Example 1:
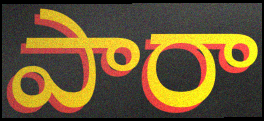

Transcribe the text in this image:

పారా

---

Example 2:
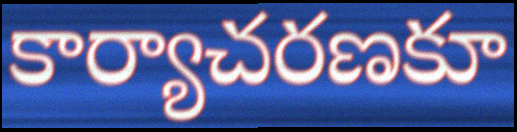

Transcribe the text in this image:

కార్యాచరణకూ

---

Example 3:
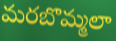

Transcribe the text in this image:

మరబొమ్మలా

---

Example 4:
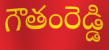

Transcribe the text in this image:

గౌతంరెడ్డి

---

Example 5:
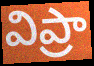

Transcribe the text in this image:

విప్రా